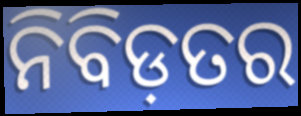
ନିବିଡ଼ତର